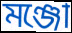
মঞ্জো